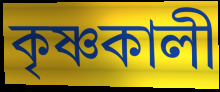
কৃষ্ণকালী